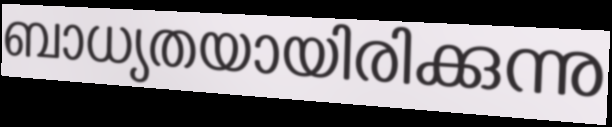
ബാധ്യതയായിരിക്കുന്നു